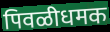
पिवळीधमक